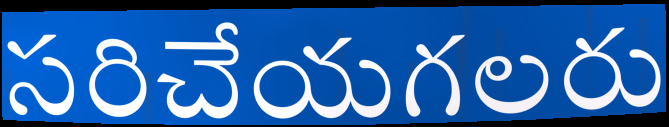
సరిచేయగలరు